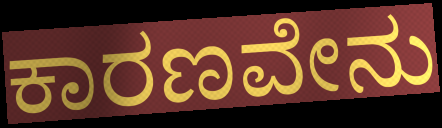
ಕಾರಣವೇನು